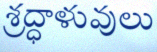
శ్రద్ధాళువులు